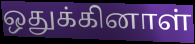
ஒதுக்கினாள்